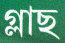
গ্লাছ